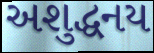
અશુદ્ધનય